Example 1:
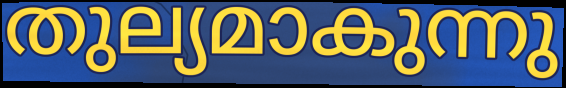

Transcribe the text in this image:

തുല്യമാകുന്നു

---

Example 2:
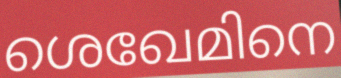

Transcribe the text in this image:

ശെഖേമിനെ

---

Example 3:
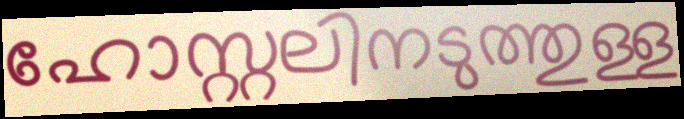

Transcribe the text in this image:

ഹോസ്റ്റലിനടുത്തുള്ള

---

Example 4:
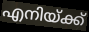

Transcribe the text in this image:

എനിയ്ക്ക്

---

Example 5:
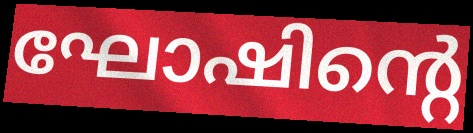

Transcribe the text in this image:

ഘോഷിന്റെ